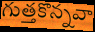
గుత్తకొన్నవా